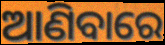
ଆଣିବାରେ